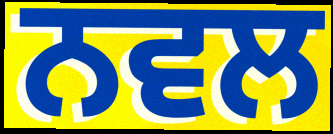
ਨਵਲ